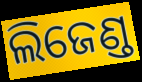
ଲିଜେଣ୍ଡ